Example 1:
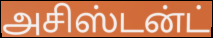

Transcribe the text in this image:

அசிஸ்டன்ட்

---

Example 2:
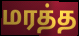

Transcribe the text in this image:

மரத்த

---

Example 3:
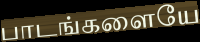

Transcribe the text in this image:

பாடங்களையே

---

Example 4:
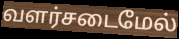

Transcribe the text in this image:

வளர்சடைமேல்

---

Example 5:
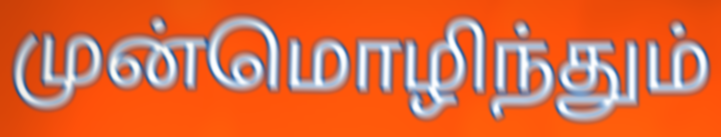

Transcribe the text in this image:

முன்மொழிந்தும்